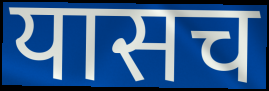
यासच